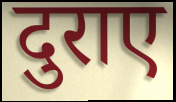
दुराए